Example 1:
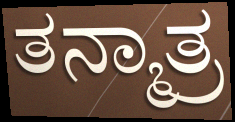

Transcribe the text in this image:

ತನ್ಮಾತ್ರ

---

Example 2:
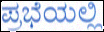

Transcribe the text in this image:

ಪ್ರಭೆಯಲ್ಲಿ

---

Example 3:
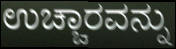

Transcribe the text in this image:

ಉಚ್ಚಾರವನ್ನು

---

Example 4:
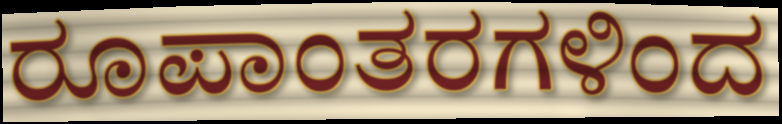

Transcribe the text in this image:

ರೂಪಾಂತರಗಳಿಂದ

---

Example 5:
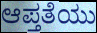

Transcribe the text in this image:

ಆಪ್ತತೆಯು